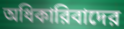
অধিকারিবাদের